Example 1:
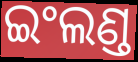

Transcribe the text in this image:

ଇଂଲଣ୍ଡ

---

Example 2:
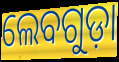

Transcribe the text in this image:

ଲେବଗୁଡ଼ା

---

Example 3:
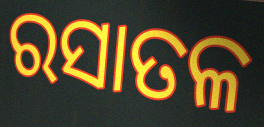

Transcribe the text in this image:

ରସାତଳ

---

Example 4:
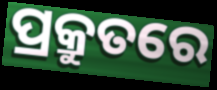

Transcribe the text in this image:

ପ୍ରକ୍ରୁତରେ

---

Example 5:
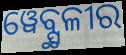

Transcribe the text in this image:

ୱେବ୍ସ୍ଥଳୀର